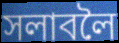
সলাবলৈ